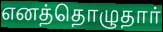
எனத்தொழுதார்